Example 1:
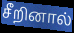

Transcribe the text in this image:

சீறினால்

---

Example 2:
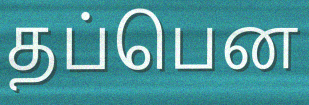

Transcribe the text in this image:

தப்பென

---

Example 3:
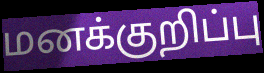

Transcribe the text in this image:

மனக்குறிப்பு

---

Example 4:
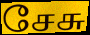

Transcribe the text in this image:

சேசு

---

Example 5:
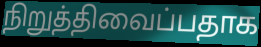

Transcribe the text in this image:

நிறுத்திவைப்பதாக